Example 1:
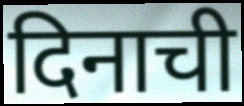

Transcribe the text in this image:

दिनाची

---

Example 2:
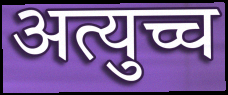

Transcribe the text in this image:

अत्युच्च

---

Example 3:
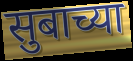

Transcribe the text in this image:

सुबाच्या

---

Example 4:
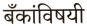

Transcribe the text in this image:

बँकांविषयी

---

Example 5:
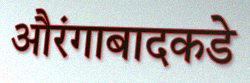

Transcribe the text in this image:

औरंगाबादकडे